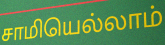
சாமியெல்லாம்